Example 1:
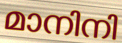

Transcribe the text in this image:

മാനിനി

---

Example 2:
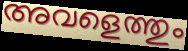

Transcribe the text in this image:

അവളെത്തും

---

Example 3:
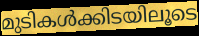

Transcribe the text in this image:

മുടികൾക്കിടയിലൂടെ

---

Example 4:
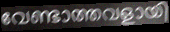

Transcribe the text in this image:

വേണ്ടാത്തവളായി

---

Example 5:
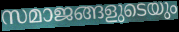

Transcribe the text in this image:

സമാജങ്ങളുടെയും